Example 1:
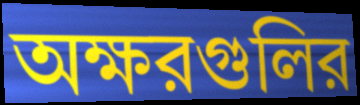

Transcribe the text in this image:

অক্ষরগুলির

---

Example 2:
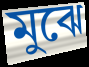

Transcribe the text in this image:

মুঝে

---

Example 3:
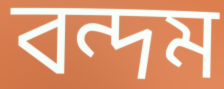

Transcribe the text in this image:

বন্দম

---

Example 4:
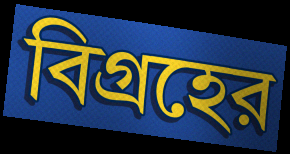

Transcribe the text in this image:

বিগ্রহের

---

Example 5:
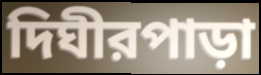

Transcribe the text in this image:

দিঘীরপাড়া